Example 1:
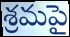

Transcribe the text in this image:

శ్రమపై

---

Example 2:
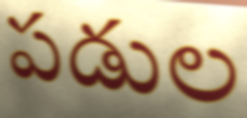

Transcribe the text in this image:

పడుల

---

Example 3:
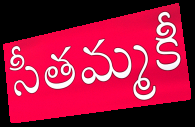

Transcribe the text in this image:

సీతమ్మకీ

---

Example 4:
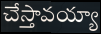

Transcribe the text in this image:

చేస్తావయ్యా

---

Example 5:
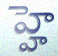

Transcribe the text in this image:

హ్హె